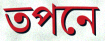
তপনে